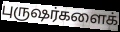
புருஷர்களைக்